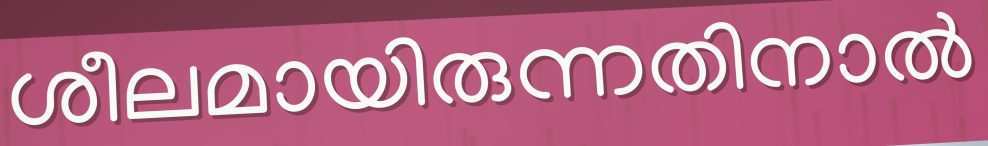
ശീലമായിരുന്നതിനാൽ